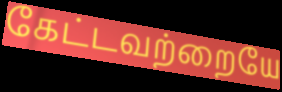
கேட்டவற்றையே